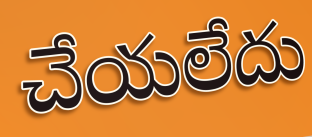
చేయలేదు